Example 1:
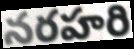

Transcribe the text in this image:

నరహరి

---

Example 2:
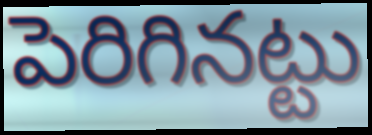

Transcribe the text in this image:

పెరిగినట్టు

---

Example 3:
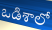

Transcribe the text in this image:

ఒడిశాలో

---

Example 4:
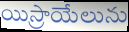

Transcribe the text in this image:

యిస్రాయేలును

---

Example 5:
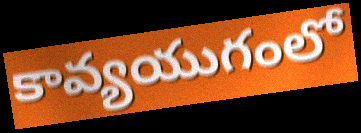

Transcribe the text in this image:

కావ్యయుగంలో